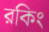
রকিং